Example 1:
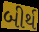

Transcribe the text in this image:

બીર્થ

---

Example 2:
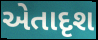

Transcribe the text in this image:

એતાદૃશ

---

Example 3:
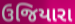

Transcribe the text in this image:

ઉજિયારા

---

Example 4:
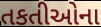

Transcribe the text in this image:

તકતીઓના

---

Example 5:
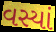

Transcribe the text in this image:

વસ્યાં